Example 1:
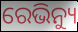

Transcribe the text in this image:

ରେଭିନ୍ୟୁ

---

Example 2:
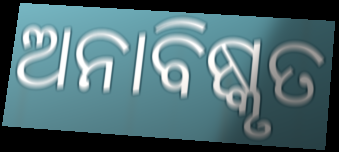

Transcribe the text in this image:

ଅନାବିଷ୍କୃତ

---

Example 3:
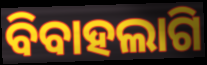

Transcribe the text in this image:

ବିବାହଲାଗି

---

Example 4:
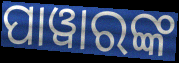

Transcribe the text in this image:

ପାୱାରଙ୍କ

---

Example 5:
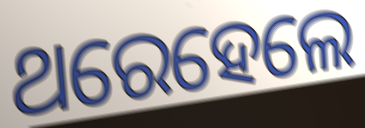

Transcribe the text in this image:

ଥରେହେଲେ